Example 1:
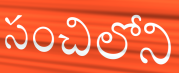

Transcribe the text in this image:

సంచిలోని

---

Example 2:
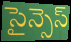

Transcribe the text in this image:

సైన్సెస్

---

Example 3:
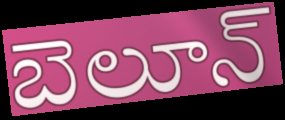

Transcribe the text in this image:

బెలూన్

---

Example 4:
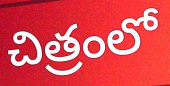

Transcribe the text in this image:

చిత్రంలో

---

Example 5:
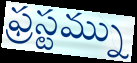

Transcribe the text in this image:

ఫ్రస్టమ్ను